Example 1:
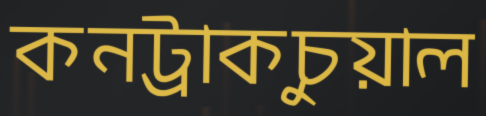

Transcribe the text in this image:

কনট্রাকচুয়াল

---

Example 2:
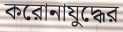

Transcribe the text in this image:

করোনাযুদ্ধের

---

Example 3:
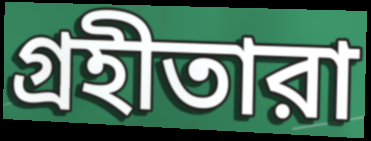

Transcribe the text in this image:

গ্রহীতারা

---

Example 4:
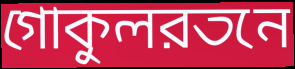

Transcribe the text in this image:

গোকুলরতনে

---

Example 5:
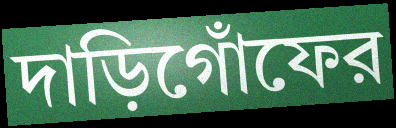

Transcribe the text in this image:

দাড়িগোঁফের